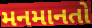
મનમાનતો